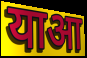
याआ